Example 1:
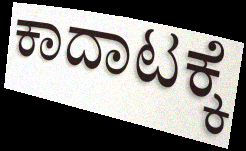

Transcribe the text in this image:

ಕಾದಾಟಕ್ಕೆ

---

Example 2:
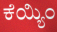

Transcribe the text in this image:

ಕೆಯ್ಯಿಂ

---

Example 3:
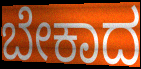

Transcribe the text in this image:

ಬೇಕಾದ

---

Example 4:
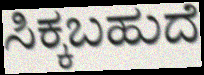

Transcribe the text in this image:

ಸಿಕ್ಕಬಹುದೆ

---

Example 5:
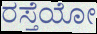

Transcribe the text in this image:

ರಸ್ತೆಯೋ